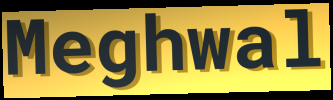
Meghwal